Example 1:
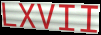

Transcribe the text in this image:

LXVII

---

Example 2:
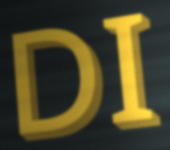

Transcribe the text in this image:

DI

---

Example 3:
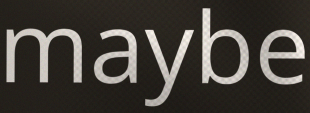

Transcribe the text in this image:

maybe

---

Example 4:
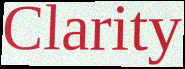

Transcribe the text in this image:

Clarity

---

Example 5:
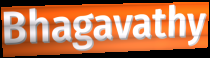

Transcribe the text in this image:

Bhagavathy